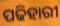
ପଢିହାରୀ